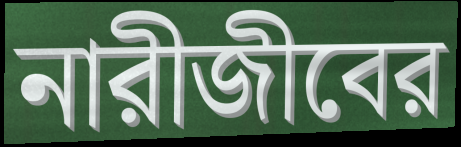
নারীজীবের